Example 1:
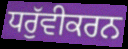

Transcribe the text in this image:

ਧਰੁੱਵੀਕਰਨ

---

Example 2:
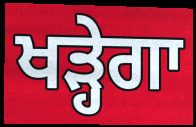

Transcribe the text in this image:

ਖੜ੍ਹੇਗਾ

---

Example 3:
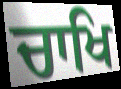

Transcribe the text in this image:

ਚਾਖਿ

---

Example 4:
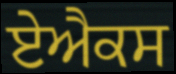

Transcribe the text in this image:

ਏਐਕਸ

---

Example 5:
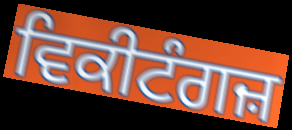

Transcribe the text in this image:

ਵਿਕੀਟੰਗਜ਼